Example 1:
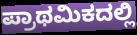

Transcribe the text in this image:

ಪ್ರಾಥಮಿಕದಲ್ಲಿ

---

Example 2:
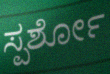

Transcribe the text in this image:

ಸ್ಪರ್ಶೋ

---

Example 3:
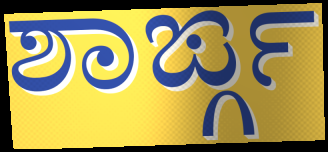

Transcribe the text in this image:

ಶಾರ್ಙ್ಗ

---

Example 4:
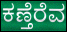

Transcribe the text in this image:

ಕಣ್ತೆರೆವ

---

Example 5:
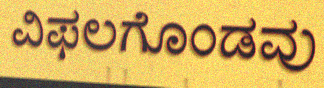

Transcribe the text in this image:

ವಿಫಲಗೊಂಡವು